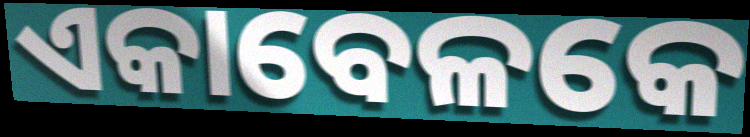
ଏକାବେଳକେ